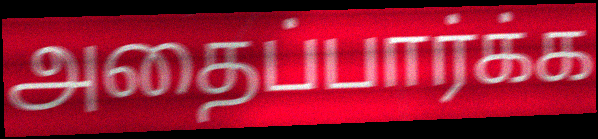
அதைப்பார்க்க